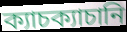
ক্যাচক্যাচানি